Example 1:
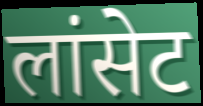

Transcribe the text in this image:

लांसेट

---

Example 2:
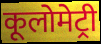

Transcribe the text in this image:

कूलोमेट्री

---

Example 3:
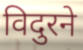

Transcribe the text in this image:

विदुरने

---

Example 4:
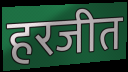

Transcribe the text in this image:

हरजीत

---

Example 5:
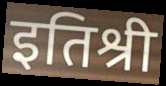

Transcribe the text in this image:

इतिश्री